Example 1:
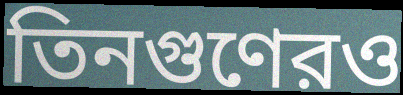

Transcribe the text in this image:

তিনগুণেরও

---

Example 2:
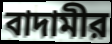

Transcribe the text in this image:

বাদামীর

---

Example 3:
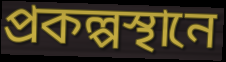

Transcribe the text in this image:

প্রকল্পস্থানে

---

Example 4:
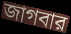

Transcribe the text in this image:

জাগবার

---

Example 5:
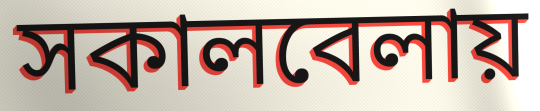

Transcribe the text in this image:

সকালবেলায়